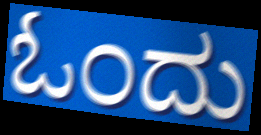
ಓಂದು